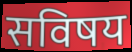
सविषय